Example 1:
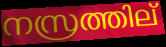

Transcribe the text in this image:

നസ്രത്തില്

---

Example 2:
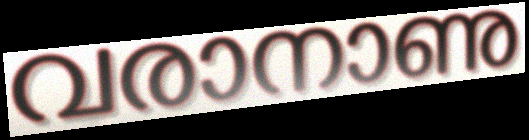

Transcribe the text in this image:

വരാനാണു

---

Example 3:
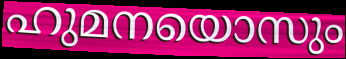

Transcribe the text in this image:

ഹുമനയൊസും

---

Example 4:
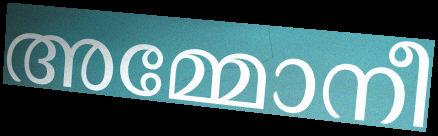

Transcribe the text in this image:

അമ്മോനീ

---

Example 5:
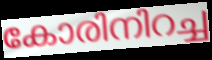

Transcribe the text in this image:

കോരിനിറച്ച